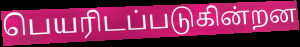
பெயரிடப்படுகின்றன